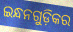
ଇନ୍ଧନଗୁଡ଼ିକର